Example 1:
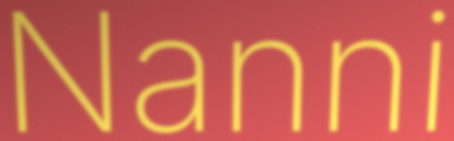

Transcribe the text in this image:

Nanni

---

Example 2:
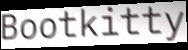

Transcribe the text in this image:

Bootkitty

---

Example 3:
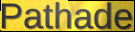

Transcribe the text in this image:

Pathade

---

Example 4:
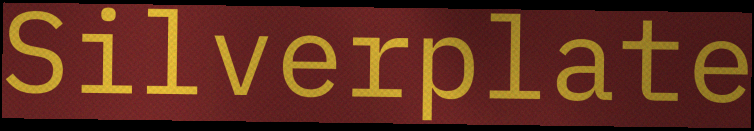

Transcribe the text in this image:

Silverplate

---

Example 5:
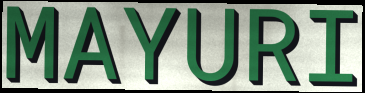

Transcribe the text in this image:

MAYURI